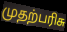
முதற்பரிசு